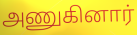
அணுகினார்